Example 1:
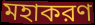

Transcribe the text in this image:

মহাকরণ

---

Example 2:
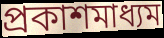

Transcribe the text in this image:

প্রকাশমাধ্যম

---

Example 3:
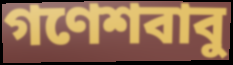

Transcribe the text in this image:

গণেশবাবু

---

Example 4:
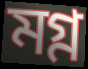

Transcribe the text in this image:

মগ্ন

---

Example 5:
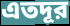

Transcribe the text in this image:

এতদূর